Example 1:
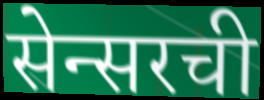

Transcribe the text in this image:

सेन्सरची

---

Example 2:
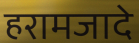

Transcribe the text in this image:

हरामजादे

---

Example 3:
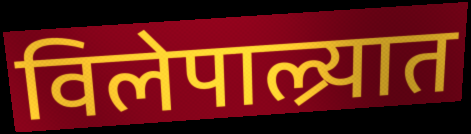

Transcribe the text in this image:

विलेपाल्र्यात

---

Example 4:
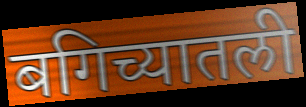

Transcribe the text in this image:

बगिच्यातली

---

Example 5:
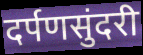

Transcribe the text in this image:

दर्पणसुंदरी